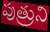
పుత్రుని